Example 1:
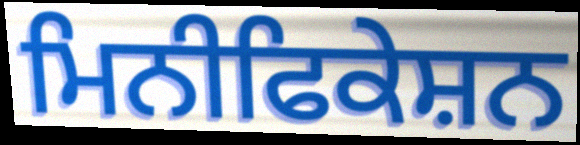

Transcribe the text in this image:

ਮਿਨੀਫਿਕੇਸ਼ਨ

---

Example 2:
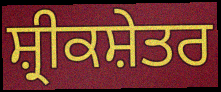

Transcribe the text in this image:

ਸ਼੍ਰੀਕਸ਼ੇਤਰ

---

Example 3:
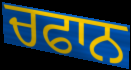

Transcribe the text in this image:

ਚਫਾਨ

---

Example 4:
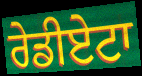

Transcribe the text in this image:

ਰੇਡੀਏਟਾ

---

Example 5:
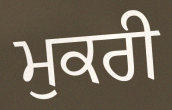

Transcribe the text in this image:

ਮੁਕਰੀ